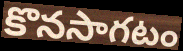
కొనసాగటం